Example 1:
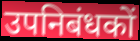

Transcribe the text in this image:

उपनिबंधकों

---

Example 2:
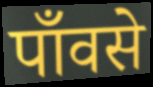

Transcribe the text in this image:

पाँवसे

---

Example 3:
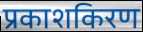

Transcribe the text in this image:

प्रकाशकिरण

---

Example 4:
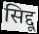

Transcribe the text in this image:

सिद्दू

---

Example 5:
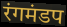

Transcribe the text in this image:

रंगमंडप